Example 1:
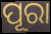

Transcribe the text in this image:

ପୂରା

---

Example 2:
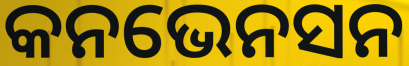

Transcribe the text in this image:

କନଭେନସନ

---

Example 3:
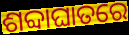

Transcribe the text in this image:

ଶବ୍ଦାଘାତରେ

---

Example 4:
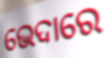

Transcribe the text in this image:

ଭେଦାରେ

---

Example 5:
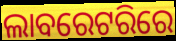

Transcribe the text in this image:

ଲାବରେଟରିରେ